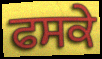
ਫਸਕੇ